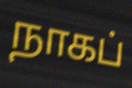
நாகப்